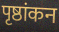
पृष्ठांकन